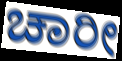
ಚಾರೀ